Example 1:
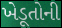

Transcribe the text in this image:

ખેડૂતોની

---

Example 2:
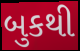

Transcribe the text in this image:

બુકથી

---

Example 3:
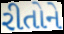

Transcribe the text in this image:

રીતોને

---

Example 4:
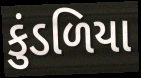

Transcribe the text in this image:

કુંડળિયા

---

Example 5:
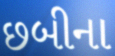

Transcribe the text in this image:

છબીના